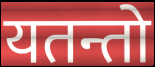
यतन्तो